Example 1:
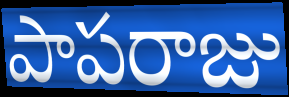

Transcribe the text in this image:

పాపరాజు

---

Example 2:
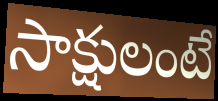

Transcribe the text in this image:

సాక్షులంటే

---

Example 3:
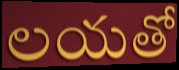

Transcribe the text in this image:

లయతో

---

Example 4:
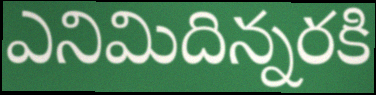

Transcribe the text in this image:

ఎనిమిదిన్నరకి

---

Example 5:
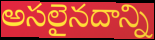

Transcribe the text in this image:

అసలైనదాన్ని